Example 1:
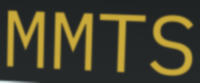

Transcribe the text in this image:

MMTS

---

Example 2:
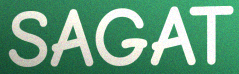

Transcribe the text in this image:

SAGAT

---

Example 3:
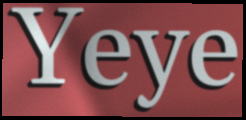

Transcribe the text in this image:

Yeye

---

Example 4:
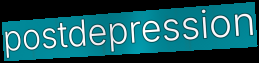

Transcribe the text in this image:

postdepression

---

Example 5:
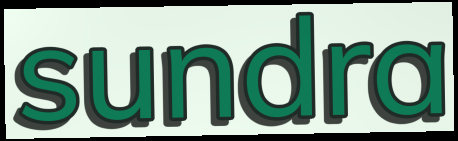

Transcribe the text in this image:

sundra